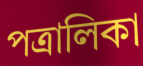
পত্রালিকা